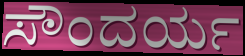
ಸೌಂದರ್ಯ